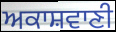
ਅਕਾਸ਼ਵਾਣੀ